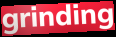
grinding